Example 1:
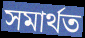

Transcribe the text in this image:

সমাৰ্থত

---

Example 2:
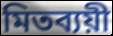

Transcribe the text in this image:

মিতব্যয়ী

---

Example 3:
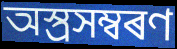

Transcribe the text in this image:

অস্ত্ৰসম্বৰণ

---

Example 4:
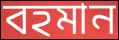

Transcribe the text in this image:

বহমান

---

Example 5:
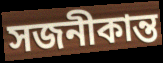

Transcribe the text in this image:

সজনীকান্ত